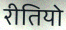
रीतियो